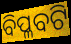
ବିପ୍ଳବଟି